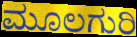
ಮೂಲಗುರಿ